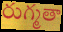
రుగ్మతా